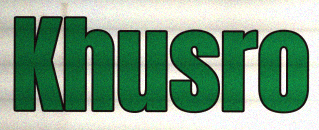
Khusro